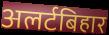
अलर्टबिहार